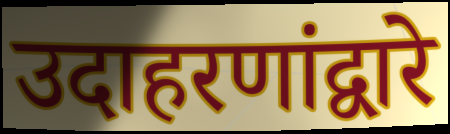
उदाहरणांद्वारे